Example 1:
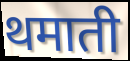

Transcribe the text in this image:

थमाती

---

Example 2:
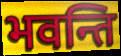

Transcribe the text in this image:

भवन्ति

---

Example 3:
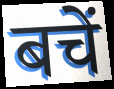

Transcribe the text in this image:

बचें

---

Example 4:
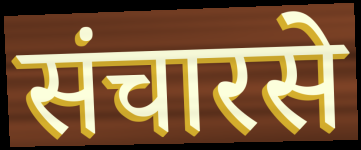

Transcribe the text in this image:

संचारसे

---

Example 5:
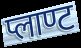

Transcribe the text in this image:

प्लाण्ट